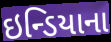
ઇન્ડિયાના